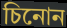
চিনোন